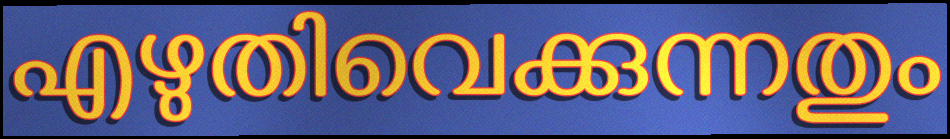
എഴുതിവെക്കുന്നതും